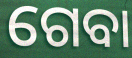
ଗେବା